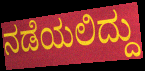
ನಡೆಯಲಿದ್ದು